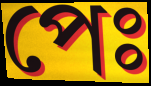
পেঃ